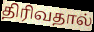
திரிவதால்